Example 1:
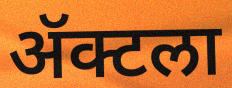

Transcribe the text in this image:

ॲक्टला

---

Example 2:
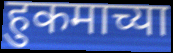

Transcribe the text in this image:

हुकमाच्या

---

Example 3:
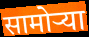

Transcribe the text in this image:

सामोऱ्या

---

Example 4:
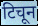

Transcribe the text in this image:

टिचून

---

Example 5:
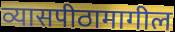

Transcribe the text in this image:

व्यासपीठामागील